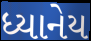
ધ્યાનેય